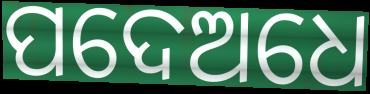
ପଦେଅଧେ